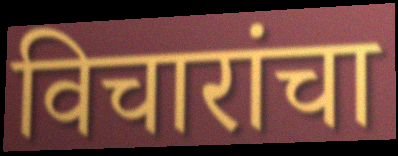
विचारांचा